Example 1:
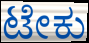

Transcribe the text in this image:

ಟೇಕು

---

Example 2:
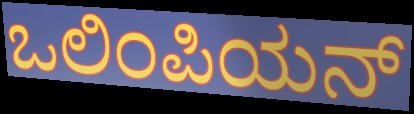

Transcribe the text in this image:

ಒಲಿಂಪಿಯನ್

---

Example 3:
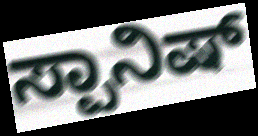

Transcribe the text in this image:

ಸ್ಪಾನಿಷ್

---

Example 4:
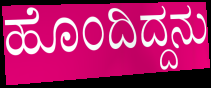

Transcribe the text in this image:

ಹೊಂದಿದ್ದನು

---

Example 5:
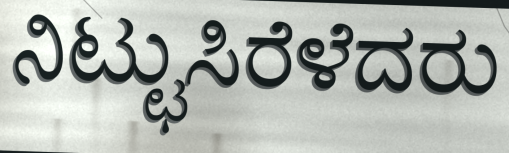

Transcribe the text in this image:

ನಿಟ್ಟುಸಿರೆಳೆದರು